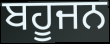
ਬਹੂਜਨ